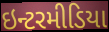
ઇન્ટરમીડિયા